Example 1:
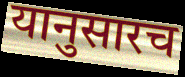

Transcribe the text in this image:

यानुसारच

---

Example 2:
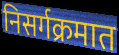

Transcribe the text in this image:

निसर्गक्रमात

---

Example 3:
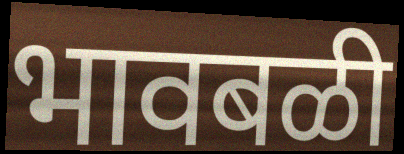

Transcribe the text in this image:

भावबळी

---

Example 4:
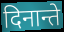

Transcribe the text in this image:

दिनान्ते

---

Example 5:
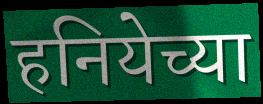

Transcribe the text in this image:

हनियेच्या